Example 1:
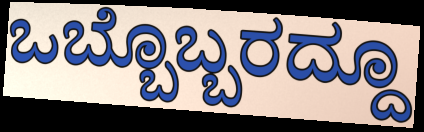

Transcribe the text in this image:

ಒಬ್ಬೊಬ್ಬರದ್ದೂ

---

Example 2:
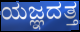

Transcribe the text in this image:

ಯಜ್ಞದತ್ತ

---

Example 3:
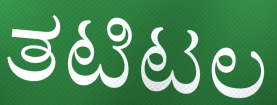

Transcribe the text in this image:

ತಟಿಟಲ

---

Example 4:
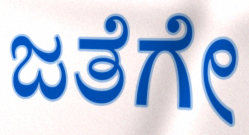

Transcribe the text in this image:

ಜತೆಗೇ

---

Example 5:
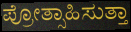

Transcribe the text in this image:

ಪ್ರೋತ್ಸಾಹಿಸುತ್ತಾ